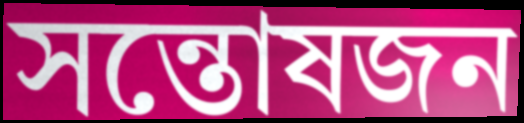
সন্তোষজন